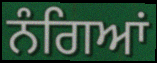
ਨੰਗਿਆਂ